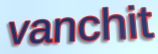
vanchit